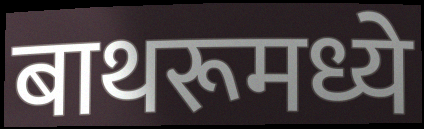
बाथरूमध्ये